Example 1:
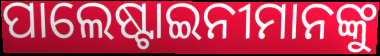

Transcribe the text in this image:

ପାଲେଷ୍ଟାଇନୀମାନଙ୍କୁ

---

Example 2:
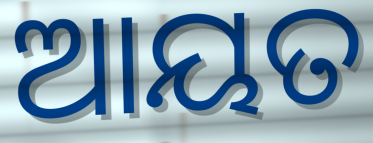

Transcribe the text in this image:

ଆୟତ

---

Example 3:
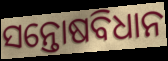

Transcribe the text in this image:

ସନ୍ତୋଷବିଧାନ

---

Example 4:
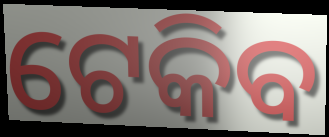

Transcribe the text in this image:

ଟେକିବ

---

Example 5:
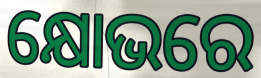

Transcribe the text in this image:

କ୍ଷୋଭରେ